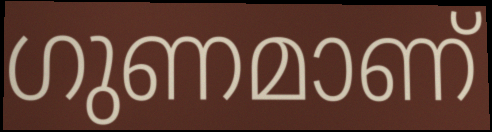
ഗുണമാണ്